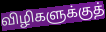
விழிகளுக்குத்